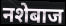
नशेबाज